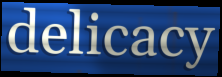
delicacy